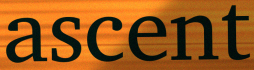
ascent